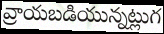
వ్రాయబడియున్నట్లుగ